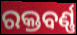
ରକ୍ତବର୍ଣ୍ଣ